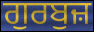
ਗੁਰਬੁਜ਼